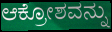
ಆಕ್ರೋಶವನ್ನು